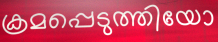
ക്രമപ്പെടുത്തിയോ